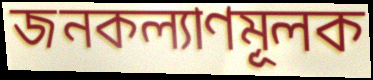
জনকল্যাণমূলক